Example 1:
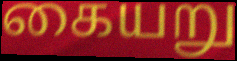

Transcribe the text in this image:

கையறு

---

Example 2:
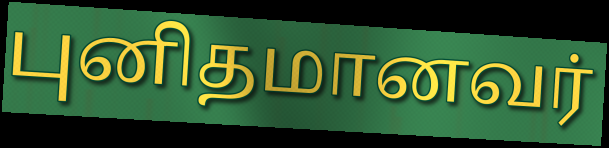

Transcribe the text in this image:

புனிதமானவர்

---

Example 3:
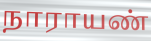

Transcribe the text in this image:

நாராயண்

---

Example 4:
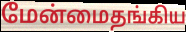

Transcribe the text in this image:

மேன்மைதங்கிய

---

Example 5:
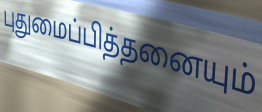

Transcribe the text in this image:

புதுமைப்பித்தனையும்